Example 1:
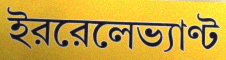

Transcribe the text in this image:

ইররেলেভ্যাণ্ট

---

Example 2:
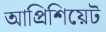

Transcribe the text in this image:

আপ্রিশিয়েট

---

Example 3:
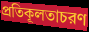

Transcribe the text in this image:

প্রতিকূলতাচরণ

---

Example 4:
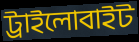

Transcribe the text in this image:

ট্রাইলোবাইট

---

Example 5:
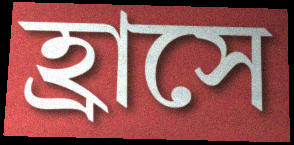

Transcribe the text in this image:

হ্রাসে